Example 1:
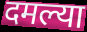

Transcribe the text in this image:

दमल्या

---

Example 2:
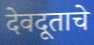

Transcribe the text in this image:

देवदूताचे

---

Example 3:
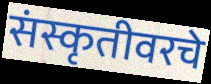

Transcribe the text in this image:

संस्कृतीवरचे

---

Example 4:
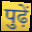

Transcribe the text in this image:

पुढ़ें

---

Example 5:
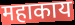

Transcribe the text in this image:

महाकाय